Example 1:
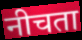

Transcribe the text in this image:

नीचता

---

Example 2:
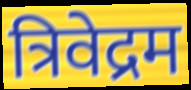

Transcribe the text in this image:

त्रिवेद्रम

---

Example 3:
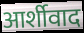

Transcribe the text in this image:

आर्शीवाद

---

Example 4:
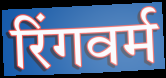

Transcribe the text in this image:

रिंगवर्म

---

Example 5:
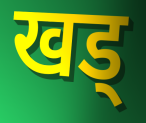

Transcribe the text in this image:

खड्